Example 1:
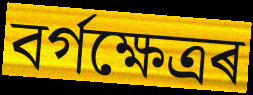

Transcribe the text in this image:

বৰ্গক্ষেত্ৰৰ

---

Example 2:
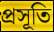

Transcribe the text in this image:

প্ৰসূতি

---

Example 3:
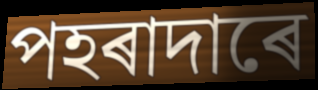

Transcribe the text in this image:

পহৰাদাৰে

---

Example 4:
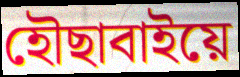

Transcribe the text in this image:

হৌছাবাইয়ে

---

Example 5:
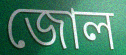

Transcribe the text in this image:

জোল